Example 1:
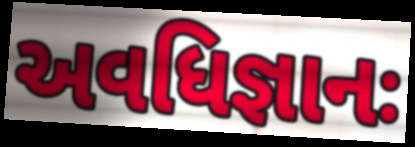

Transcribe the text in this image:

અવધિજ્ઞાનઃ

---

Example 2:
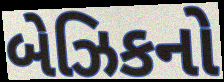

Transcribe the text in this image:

બેઝિકનો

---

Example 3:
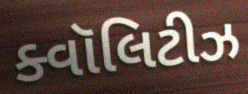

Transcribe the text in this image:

ક્વૉલિટીઝ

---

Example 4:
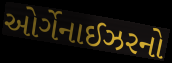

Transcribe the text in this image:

ઓર્ગેનાઈઝરનો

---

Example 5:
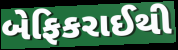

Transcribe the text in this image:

બેફિકરાઈથી